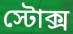
স্টোক্স